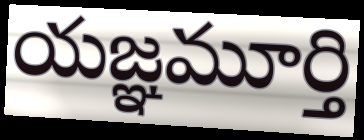
యజ్ఞమూర్తి